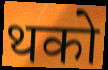
थको